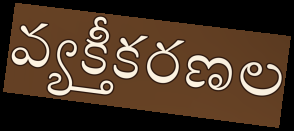
వ్యక్తీకరణల